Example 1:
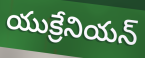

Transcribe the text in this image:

యుక్రేనియన్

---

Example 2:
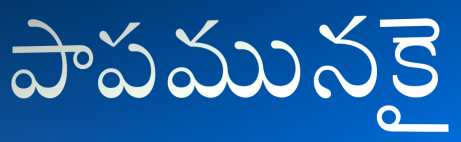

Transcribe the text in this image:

పాపమునకై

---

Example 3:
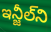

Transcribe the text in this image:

ఇన్జీల్‌ని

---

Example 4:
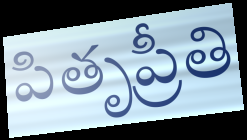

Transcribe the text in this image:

పితృప్రీతి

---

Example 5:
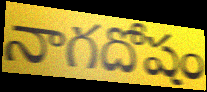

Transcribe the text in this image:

నాగదోషం